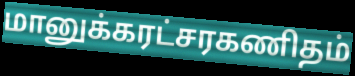
மானுக்கரட்சரகணிதம்